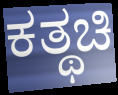
ಕತ್ಥಚಿ